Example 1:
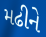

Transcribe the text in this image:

મઢીને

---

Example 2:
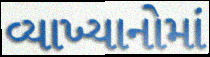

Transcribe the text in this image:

વ્યાખ્યાનોમાં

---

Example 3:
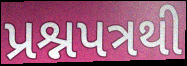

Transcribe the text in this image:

પ્રશ્નપત્રથી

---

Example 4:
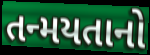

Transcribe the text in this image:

તન્મયતાનો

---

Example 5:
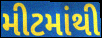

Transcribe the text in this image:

મીટમાંથી